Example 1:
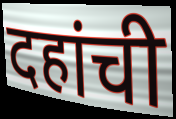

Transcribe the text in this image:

दहांची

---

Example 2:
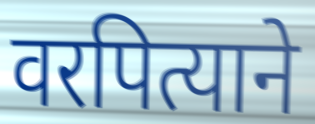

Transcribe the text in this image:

वरपित्याने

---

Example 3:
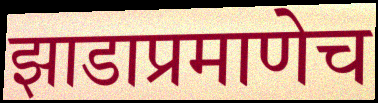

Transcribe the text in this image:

झाडाप्रमाणेच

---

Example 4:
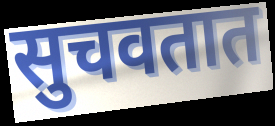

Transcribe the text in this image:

सुचवतात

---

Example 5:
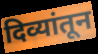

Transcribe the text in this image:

दिव्यांतून